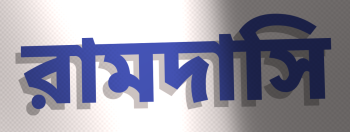
রামদাসি